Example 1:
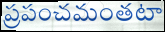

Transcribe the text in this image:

ప్రపంచమంతటా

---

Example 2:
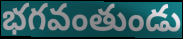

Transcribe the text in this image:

భగవంతుండు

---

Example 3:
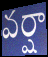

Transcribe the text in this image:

వర్షా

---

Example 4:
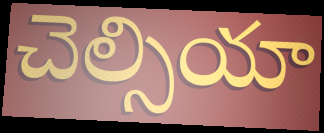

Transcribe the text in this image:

చెల్సియా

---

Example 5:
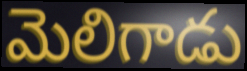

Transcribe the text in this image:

మెలిగాడు